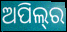
ଅପିଲ୍‍ର